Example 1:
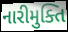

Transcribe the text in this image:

નારીમુક્તિ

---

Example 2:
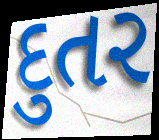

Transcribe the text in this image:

દુતર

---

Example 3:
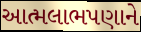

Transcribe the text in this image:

આત્મલાભપણાને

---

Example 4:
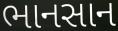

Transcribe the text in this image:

ભાનસાન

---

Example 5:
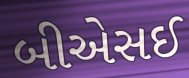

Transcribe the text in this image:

બીએસઈ